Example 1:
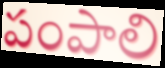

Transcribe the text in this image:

పంపాలి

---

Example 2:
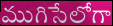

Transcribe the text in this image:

ముగిసేలోగా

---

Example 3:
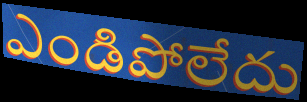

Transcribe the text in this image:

ఎండిపోలేదు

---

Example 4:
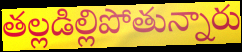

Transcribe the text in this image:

తల్లడిల్లిపోతున్నారు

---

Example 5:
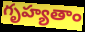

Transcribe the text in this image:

గృహ్యతాం